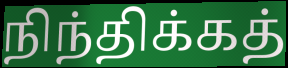
நிந்திக்கத்